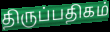
திருப்பதிகம்